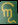
ଳୂ